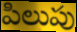
పిలుపు